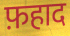
फ़हाद